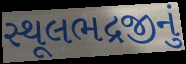
સ્થૂલભદ્રજીનું